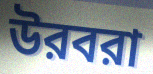
উরবরা